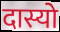
दास्यो